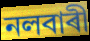
নলবাৰী